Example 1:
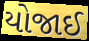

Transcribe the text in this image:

યોજાઈ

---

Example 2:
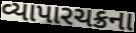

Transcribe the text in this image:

વ્યાપારચક્રના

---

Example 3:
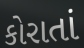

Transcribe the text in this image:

કોરાતાં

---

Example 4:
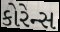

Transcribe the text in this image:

કોરેન્સ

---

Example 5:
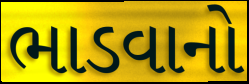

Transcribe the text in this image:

ભાડવાનો